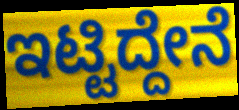
ಇಟ್ಟಿದ್ದೇನೆ